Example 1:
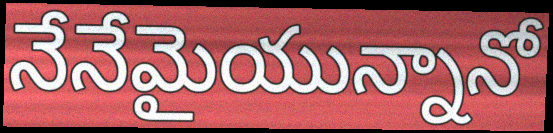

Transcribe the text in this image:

నేనేమైయున్నానో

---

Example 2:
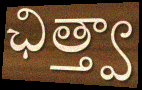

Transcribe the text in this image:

ఛిత్త్వా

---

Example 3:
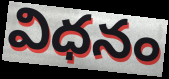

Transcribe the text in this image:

విధనం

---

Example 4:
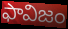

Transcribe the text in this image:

ఫావిజం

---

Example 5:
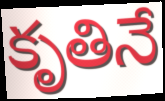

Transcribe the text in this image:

కృతినే